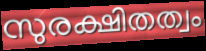
സുരക്ഷിതത്വം